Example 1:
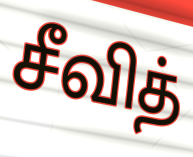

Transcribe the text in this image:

சீவித்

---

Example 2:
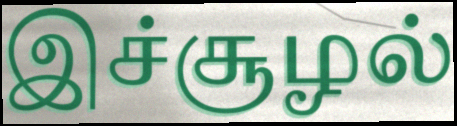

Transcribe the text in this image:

இச்சூழல்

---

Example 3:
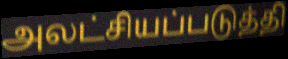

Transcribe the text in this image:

அலட்சியப்படுத்தி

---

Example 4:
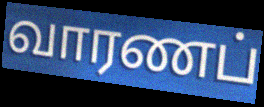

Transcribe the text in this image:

வாரணப்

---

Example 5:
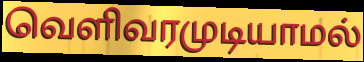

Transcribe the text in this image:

வெளிவரமுடியாமல்